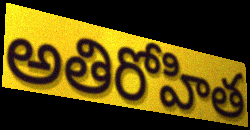
అతిరోహిత